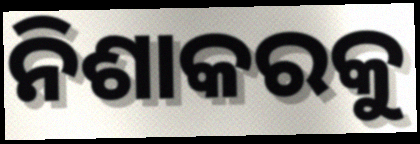
ନିଶାକରକୁ